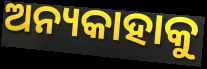
ଅନ୍ୟକାହାକୁ